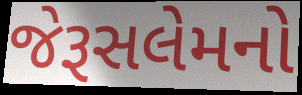
જેરૂસલેમનો